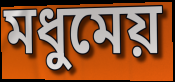
মধুমেয়